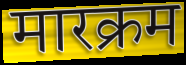
मारक्रम